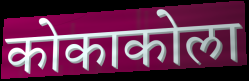
कोकाकोला